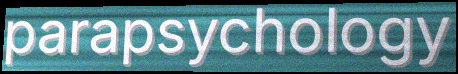
parapsychology